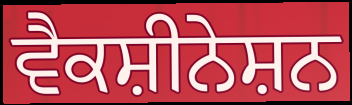
ਵੈਕਸ਼ੀਨੇਸ਼ਨ